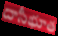
దాసీభూత